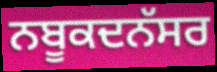
ਨਬੂਕਦਨੱਸਰ